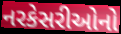
નરકેસરીઓનો